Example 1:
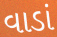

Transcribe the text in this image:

વાડાં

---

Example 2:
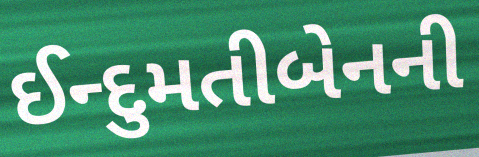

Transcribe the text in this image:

ઈન્દુમતીબેનની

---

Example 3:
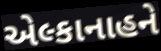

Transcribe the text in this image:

એલ્કાનાહને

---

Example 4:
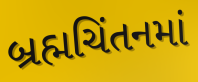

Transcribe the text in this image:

બ્રહ્મચિંતનમાં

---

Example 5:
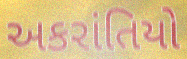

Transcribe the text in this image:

અકરાંતિયો